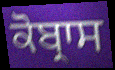
ਕੋਬ੍ਰਾਸ